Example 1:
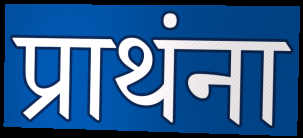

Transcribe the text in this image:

प्राथंना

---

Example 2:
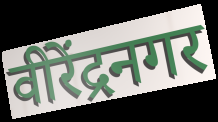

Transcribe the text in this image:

वीरेंद्रनगर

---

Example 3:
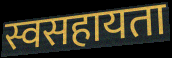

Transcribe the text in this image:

स्वसहायता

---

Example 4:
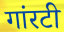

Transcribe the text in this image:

गांरटी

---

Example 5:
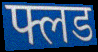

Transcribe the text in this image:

फ्लड